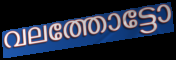
വലത്തോട്ടോ